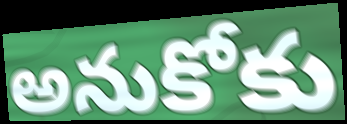
అనుకోకు